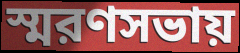
স্মরণসভায়